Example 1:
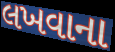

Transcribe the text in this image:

લખવાના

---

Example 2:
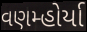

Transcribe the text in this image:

વણમ્હોર્યા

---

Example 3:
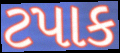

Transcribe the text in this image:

ટપાક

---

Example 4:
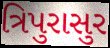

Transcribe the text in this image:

ત્રિપુરાસુર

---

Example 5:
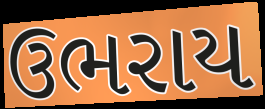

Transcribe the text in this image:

ઉભરાય